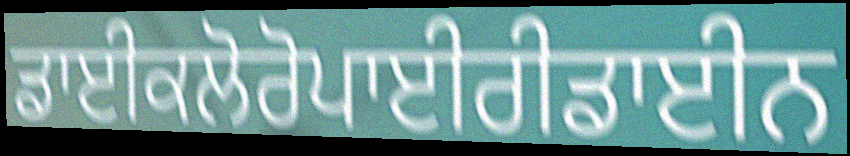
ਡਾਈਕਲੋਰੋਪਾਈਰੀਡਾਈਨ